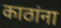
काठांना